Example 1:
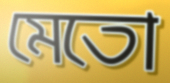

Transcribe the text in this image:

মেতো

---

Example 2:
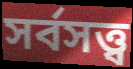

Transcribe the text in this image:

সর্বসত্ত্ব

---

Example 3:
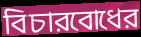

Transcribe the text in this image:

বিচারবোধের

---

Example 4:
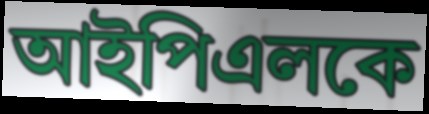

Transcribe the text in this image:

আইপিএলকে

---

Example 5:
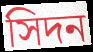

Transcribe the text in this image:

সিদন